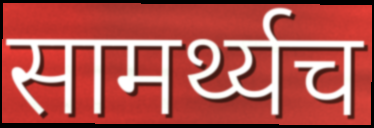
सामर्थ्यच